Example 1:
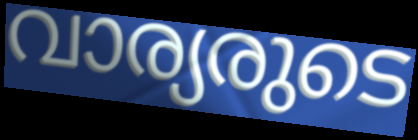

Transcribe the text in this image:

വാര്യരുടെ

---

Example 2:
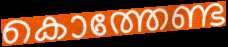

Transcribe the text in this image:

കൊത്തേണ്ട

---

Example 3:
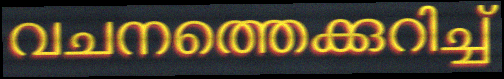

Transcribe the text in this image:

വചനത്തെക്കുറിച്ച്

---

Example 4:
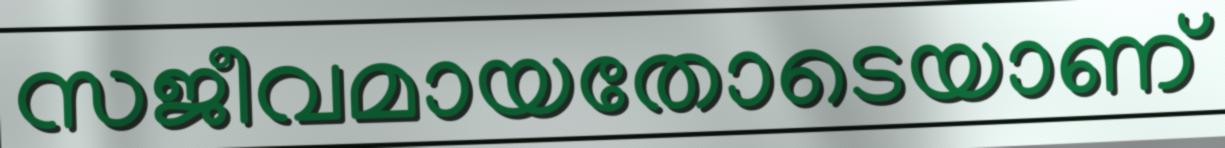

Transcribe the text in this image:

സജീവമായതോടെയാണ്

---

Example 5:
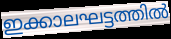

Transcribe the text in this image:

ഇക്കാലഘട്ടത്തിൽ